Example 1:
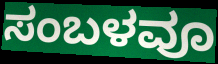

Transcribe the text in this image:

ಸಂಬಳವೂ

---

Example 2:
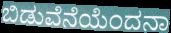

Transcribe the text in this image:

ಬಿಡುವೆನೆಯೆಂದನಾ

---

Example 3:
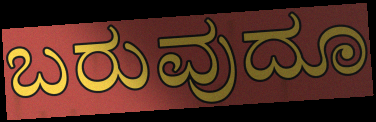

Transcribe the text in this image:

ಬರುವುದೂ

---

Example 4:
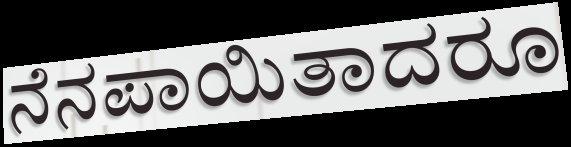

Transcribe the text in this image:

ನೆನಪಾಯಿತಾದರೂ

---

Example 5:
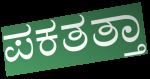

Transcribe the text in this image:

ಪಕತತ್ತಾ